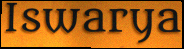
Iswarya